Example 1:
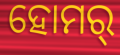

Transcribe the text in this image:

ହୋମର୍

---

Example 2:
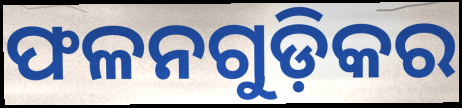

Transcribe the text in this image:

ଫଳନଗୁଡ଼ିକର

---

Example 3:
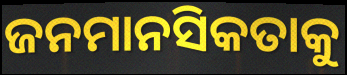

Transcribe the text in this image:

ଜନମାନସିକତାକୁ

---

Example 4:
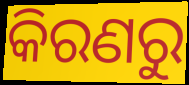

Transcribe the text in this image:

କିରଣରୁ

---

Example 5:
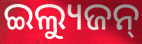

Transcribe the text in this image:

ଇଲ୍ୟୁଜନ୍